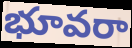
భూవరా